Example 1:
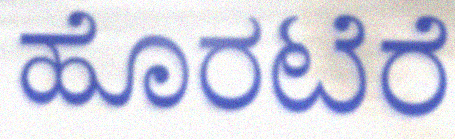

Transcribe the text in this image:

ಹೊರಟೆರೆ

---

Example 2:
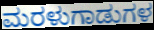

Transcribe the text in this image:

ಮರಳುಗಾಡುಗಳ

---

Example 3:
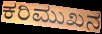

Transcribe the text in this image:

ಕರಿಮುಖನ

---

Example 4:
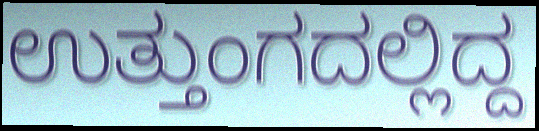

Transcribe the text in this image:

ಉತ್ತುಂಗದಲ್ಲಿದ್ದ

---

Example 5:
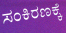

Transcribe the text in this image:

ಸಂಕಿರಣಕ್ಕೆ